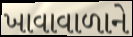
ખાવાવાળાને